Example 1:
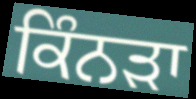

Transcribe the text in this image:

ਕਿੰਨੜਾ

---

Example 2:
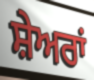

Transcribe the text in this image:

ਸ਼ੇਅਰਾਂ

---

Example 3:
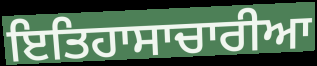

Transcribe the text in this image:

ਇਤਿਹਾਸਾਚਾਰੀਆ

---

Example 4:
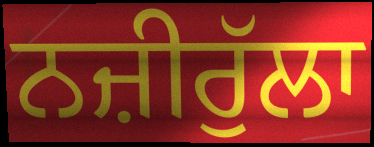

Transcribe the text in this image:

ਨਜ਼ੀਰੁੱਲਾ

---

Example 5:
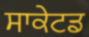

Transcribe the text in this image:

ਸਾਕੇਟਡ